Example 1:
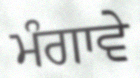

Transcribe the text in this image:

ਮੰਗਾਵੇ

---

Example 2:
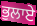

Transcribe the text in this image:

ਭੁਲਾਏ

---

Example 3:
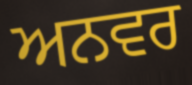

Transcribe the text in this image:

ਅਨਵਰ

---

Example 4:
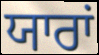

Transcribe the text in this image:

ਯਾਰਾਂ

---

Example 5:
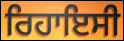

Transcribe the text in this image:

ਰਿਹਾਇਸੀ